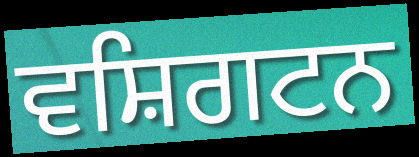
ਵਸ਼ਿਗਟਨ